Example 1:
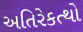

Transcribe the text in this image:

અતિરેકત્થો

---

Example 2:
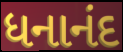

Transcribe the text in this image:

ધનાનંદ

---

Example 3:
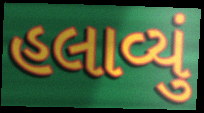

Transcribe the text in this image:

હલાવ્યું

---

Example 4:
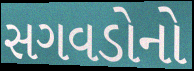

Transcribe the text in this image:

સગવડોનો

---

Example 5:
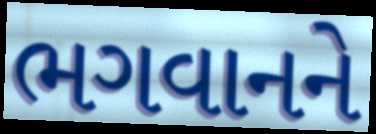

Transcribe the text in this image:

ભગવાનને